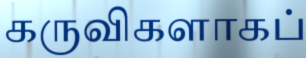
கருவிகளாகப்